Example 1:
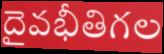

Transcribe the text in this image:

దైవభీతిగల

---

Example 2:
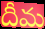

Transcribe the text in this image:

దీమ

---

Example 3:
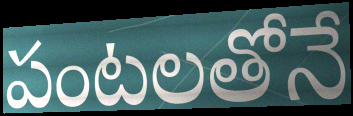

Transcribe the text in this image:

పంటలతోనే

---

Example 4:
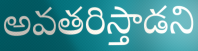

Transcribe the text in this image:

అవతరిస్తాడని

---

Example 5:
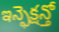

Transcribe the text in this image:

ఇన్ఫెక్షన్తో